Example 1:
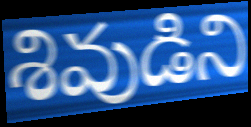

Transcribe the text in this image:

శివుడిని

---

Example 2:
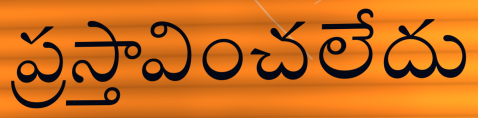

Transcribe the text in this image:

ప్రస్తావించలేదు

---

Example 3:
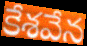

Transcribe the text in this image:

కేశవేన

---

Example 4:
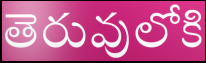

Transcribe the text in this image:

తెరువులోకి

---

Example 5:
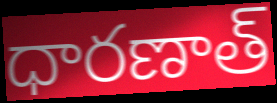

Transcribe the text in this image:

ధారణాత్